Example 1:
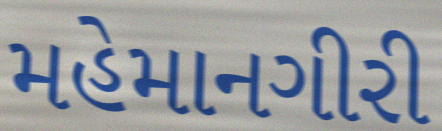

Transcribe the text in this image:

મહેમાનગીરી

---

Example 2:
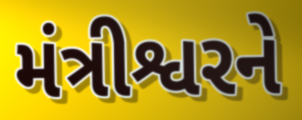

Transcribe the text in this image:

મંત્રીશ્વરને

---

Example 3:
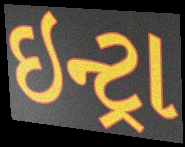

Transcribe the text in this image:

ઇન્ટ્રા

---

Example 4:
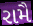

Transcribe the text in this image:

રામૈ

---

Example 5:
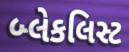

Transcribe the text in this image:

બ્લેકલિસ્ટ